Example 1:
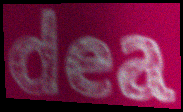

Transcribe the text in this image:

dea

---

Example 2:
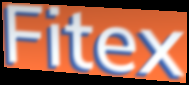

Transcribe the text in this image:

Fitex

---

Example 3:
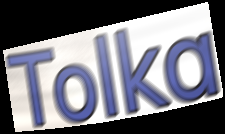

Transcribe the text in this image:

Tolka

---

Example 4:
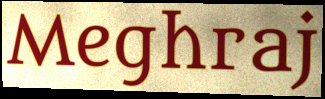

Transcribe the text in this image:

Meghraj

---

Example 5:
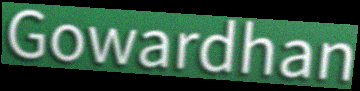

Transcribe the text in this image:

Gowardhan